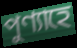
পুণ্যাহে